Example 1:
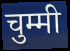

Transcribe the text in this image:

चुम्मी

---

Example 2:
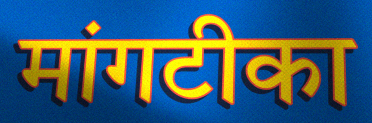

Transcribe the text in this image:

मांगटीका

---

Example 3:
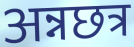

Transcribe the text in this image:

अन्नछत्र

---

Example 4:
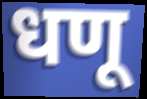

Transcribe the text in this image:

धणू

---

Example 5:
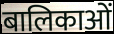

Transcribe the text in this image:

बालिकाओं